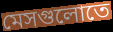
মেসগুলোতে